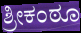
ಶ್ರೀಕಂಠೂ